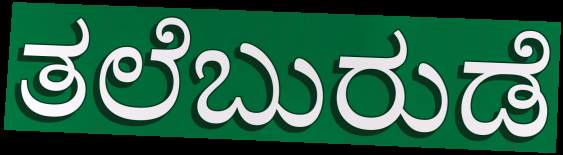
ತಲೆಬುರುಡೆ